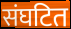
संघटित